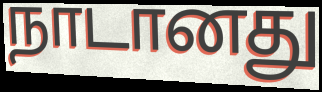
நாடானது